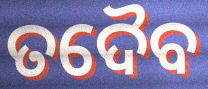
ତଦୈବ